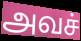
அவச்